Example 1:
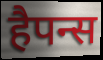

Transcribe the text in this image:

हैपन्स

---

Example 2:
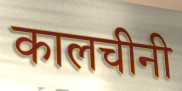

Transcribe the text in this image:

कालचीनी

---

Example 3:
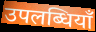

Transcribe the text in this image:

उपलब्धियाँ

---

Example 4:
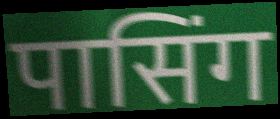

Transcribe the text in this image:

पासिंग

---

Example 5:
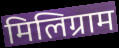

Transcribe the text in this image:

मिलिग्राम